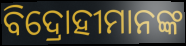
ବିଦ୍ରୋହୀମାନଙ୍କ